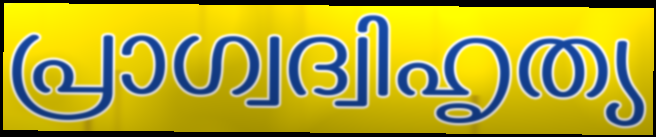
പ്രാഗ്വദ്വിഹൃത്യ